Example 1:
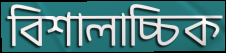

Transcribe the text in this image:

বিশালাচ্চিক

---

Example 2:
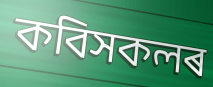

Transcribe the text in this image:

কবিসকলৰ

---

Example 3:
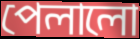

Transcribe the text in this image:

পেলালো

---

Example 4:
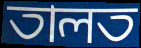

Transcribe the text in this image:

তালত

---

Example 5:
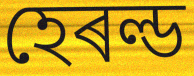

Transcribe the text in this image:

হেৰল্ড